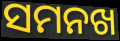
ସମନଖ